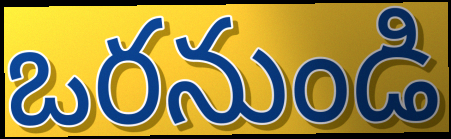
ఒరనుండి